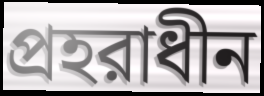
প্রহরাধীন